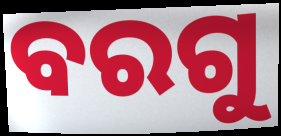
ବରଗୁ